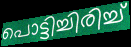
പൊട്ടിച്ചിരിച്ച്